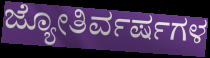
ಜ್ಯೋತಿರ್ವರ್ಷಗಳ